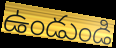
ఉండుండి